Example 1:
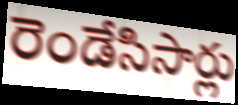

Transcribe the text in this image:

రెండేసిసార్లు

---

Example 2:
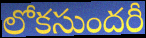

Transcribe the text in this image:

లోకసుందరీ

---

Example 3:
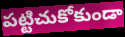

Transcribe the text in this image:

పట్టిచుకోకుండా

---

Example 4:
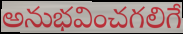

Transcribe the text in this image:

అనుభవించగలిగే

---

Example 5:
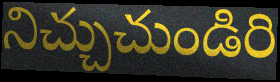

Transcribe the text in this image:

నిచ్చుచుండిరి